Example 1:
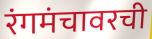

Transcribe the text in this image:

रंगमंचावरची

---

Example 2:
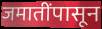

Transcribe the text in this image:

जमातींपासून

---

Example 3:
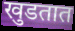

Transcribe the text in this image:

खुडतात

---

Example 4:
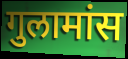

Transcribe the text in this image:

गुलामांस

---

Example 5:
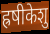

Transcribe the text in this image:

ह्रषीकेशु